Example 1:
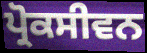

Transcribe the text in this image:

ਪ੍ਰੋਕਸੀਵਨ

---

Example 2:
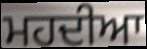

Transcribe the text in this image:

ਮਹਦੀਆ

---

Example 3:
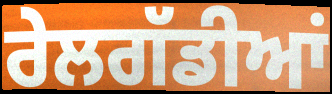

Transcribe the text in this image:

ਰੇਲਗੱਡੀਆਂ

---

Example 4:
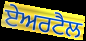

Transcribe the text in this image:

ਏਅਰਟੈਲ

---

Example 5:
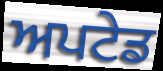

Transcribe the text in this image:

ਅਪਟੇਡ